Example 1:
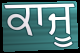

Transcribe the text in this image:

ਕਾਜੂ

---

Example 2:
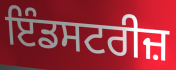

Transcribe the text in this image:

ਇੰਡਸਟਰੀਜ਼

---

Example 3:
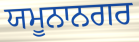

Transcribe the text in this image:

ਯਮੂਨਾਨਗਰ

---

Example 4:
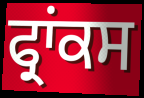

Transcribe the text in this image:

ਫ੍ਰਾਂਕਸ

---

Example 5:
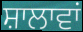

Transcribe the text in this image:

ਸ਼ਾਲਾਵਾਂ